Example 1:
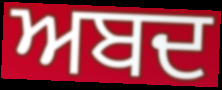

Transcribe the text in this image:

ਅਬਦ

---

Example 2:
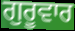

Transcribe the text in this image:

ਗੁਰੂਵਾਰ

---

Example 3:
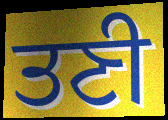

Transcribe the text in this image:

ਤਣੀ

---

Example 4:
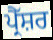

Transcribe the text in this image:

ਪ੍ਰੈੱਸ਼ਰ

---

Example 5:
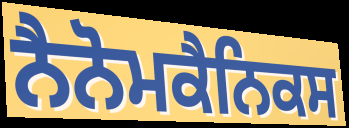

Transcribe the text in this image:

ਨੈਨੋਮਕੈਨਿਕਸ